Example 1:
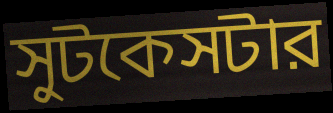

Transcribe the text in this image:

সুটকেসটার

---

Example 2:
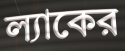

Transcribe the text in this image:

ল্যাকের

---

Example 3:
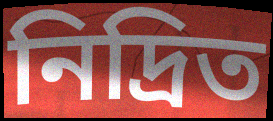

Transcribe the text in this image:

নিদ্রিত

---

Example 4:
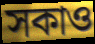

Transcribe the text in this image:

সকাও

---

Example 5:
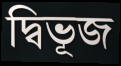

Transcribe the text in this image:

দ্বিভূজ